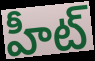
హీట్